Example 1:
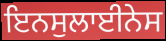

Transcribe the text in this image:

ਇਨਸੁਲਾਈਨੇਸ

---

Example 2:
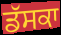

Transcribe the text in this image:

ਡੱਸਕਾ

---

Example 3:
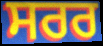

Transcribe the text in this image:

ਸਰਰ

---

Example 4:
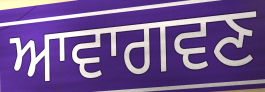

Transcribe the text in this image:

ਆਵਾਗਵਣ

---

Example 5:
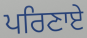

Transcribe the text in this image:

ਪਰਿਣਾਏ